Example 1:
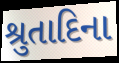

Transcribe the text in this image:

શ્રુતાદિના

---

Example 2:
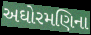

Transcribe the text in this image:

અઘોરમણિના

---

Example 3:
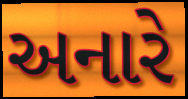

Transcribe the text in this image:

અનારે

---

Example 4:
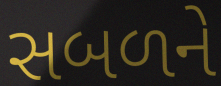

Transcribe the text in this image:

સબળને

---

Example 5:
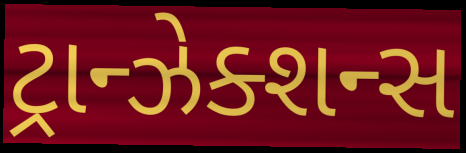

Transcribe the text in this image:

ટ્રાન્ઝેક્શન્સ